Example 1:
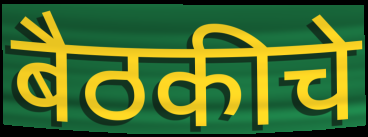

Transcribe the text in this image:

बैठकीचे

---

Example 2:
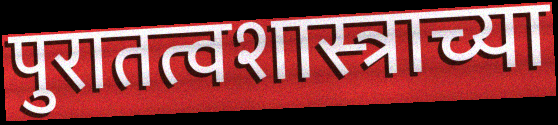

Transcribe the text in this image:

पुरातत्वशास्त्राच्या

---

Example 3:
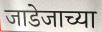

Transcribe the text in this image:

जाडेजाच्या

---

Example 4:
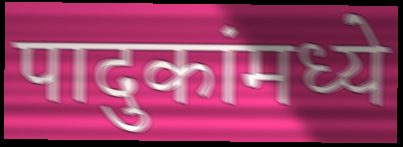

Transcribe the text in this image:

पादुकांमध्ये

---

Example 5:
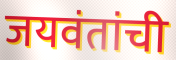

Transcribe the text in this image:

जयवंतांची